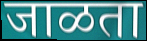
जाळता